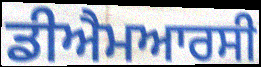
ਡੀਐਮਆਰਸੀ